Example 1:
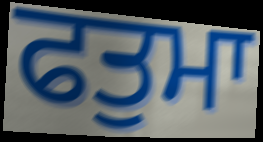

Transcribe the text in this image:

ਫਤੁਮਾ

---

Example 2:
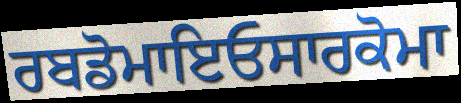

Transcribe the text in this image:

ਰਬਡੋਮਾਇਓਸਾਰਕੋਮਾ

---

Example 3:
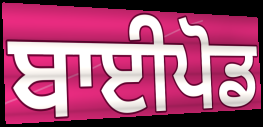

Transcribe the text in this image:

ਬਾਈਪੋਡ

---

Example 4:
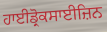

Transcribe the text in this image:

ਹਾਈਡ੍ਰੋਕਸਾਈਜ਼ਿਨ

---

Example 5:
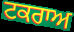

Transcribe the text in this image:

ਟਕਰਾਅ